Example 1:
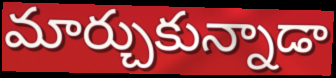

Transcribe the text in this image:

మార్చుకున్నాడా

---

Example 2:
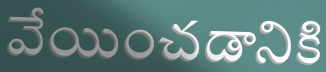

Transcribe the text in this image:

వేయించడానికి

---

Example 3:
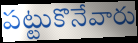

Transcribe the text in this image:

పట్టుకొనేవారు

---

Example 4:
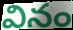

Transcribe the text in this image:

వినం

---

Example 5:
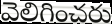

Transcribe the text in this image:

వెలిగించరు